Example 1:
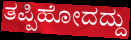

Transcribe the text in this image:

ತಪ್ಪಿಹೋದದ್ದು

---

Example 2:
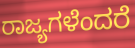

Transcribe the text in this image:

ರಾಜ್ಯಗಳೆಂದರೆ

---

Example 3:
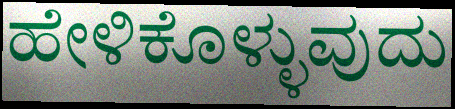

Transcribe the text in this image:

ಹೇಳಿಕೊಳ್ಳುವುದು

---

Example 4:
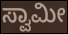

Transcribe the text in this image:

ಸ್ವಾಮೀ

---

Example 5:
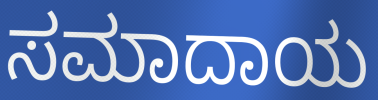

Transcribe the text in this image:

ಸಮಾದಾಯ